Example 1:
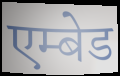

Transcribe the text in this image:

एम्बेड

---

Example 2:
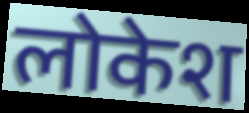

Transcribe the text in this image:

लोकेश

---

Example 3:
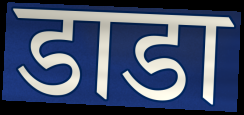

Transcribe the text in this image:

डाडा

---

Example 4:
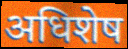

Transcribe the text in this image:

अधिशेष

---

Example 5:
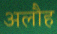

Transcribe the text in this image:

अलौह